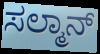
ಸಲ್ಮಾನ್